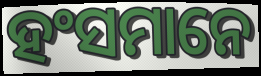
ହଂସମାନେ